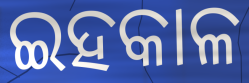
ଇହକାଳ